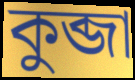
কুব্জা